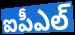
ఐపీఎల్